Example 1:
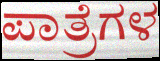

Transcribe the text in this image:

ಪಾತ್ರೆಗಳ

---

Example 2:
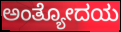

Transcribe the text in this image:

ಅಂತ್ಯೋದಯ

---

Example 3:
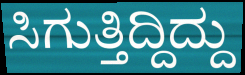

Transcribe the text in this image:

ಸಿಗುತ್ತಿದ್ದಿದ್ದು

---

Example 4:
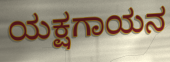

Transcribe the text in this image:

ಯಕ್ಷಗಾಯನ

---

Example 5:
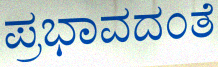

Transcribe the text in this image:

ಪ್ರಭಾವದಂತೆ